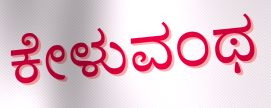
ಕೇಳುವಂಥ